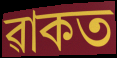
ৱাকত